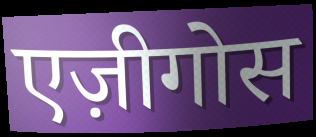
एज़ीगोस